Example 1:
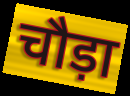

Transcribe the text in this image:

चौड़ा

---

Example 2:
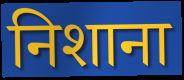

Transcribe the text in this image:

निशाना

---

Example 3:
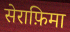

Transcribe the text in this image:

सेराफ़िमा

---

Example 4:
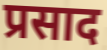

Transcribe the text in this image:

प्रसाद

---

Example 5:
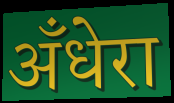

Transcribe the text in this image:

अँधेरा